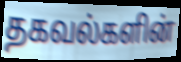
தகவல்களின்